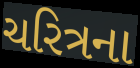
ચરિત્રના